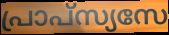
പ്രാപ്സ്യസേ